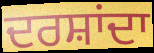
ਦਰਸ਼ਾਂਦਾ